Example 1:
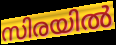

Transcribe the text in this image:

സിരയിൽ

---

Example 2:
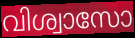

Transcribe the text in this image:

വിശ്വാസോ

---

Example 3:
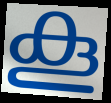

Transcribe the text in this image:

കൂ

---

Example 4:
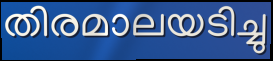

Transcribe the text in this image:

തിരമാലയടിച്ചു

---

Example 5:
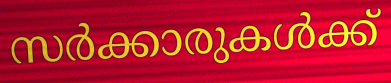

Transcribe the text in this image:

സർക്കാരുകൾക്ക്